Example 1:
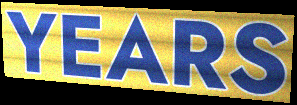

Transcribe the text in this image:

YEARS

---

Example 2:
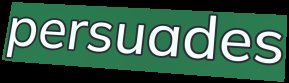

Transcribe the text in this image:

persuades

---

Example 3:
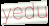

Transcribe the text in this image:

yedu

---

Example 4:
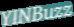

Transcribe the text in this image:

YINBuzz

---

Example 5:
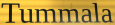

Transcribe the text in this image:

Tummala